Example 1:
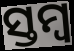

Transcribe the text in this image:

ସ୍ତମ୍ଵ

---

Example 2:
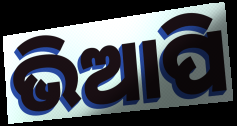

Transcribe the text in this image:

ଭିଆପି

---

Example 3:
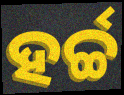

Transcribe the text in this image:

ହର୍ଚ୍ଚ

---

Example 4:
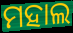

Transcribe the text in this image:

ମହାଲ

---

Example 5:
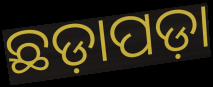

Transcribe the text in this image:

ଛଡ଼ାପଡ଼ା